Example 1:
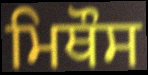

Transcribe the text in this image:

ਮਿਥੌਸ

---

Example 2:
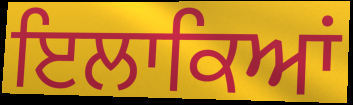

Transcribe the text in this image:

ਇਲਾਕਿਆਂ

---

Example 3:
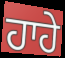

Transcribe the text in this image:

ਹਾਹੇ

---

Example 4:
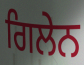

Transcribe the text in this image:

ਗਿਲੇਨ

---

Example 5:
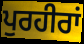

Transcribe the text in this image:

ਪੁਰਹੀਰਾਂ